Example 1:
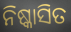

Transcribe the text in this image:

ନିଷ୍କାସିତ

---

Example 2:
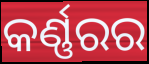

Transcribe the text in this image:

କର୍ଣ୍ଣରର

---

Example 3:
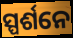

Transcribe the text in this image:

ସ୍ପର୍ଶନେ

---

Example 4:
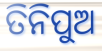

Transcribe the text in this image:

ତିନିପୁଅ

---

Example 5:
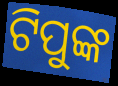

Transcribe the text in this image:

ଟିପୁଙ୍କ